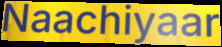
Naachiyaar